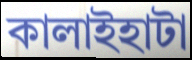
কালাইহাটা